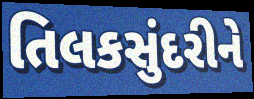
તિલકસુંદરીને